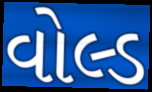
વોલ્ડ